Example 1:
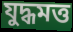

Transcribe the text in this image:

যুদ্ধমত্ত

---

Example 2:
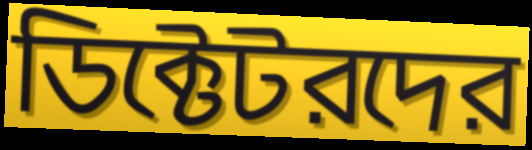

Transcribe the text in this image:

ডিক্টেটরদের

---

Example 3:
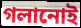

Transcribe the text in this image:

গলানোই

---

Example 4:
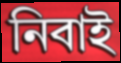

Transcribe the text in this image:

নিবাই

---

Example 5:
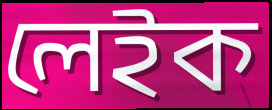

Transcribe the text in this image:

লেইক